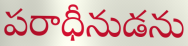
పరాధీనుడను